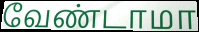
வேண்டாமா